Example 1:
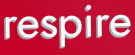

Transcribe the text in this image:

respire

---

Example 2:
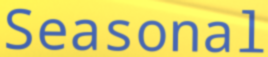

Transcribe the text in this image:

Seasonal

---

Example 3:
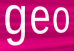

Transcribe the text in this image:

geo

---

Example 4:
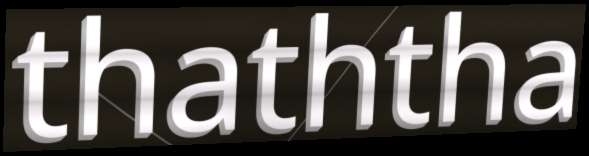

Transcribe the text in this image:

thaththa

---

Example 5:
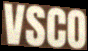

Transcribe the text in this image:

VSCO